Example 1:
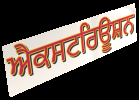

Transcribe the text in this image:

ਐਕਸਟਰਿਊਸ਼ਨ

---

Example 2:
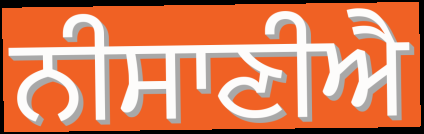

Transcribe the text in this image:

ਨੀਸਾਣੀਐ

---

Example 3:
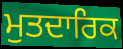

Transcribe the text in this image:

ਮੁਤਦਾਰਿਕ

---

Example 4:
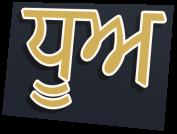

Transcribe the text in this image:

ਧੂਅ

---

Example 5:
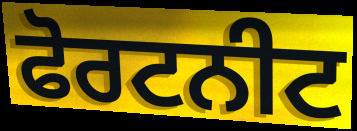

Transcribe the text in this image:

ਫੋਰਟਨੀਟ